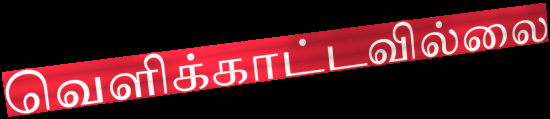
வெளிக்காட்டவில்லை